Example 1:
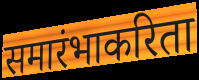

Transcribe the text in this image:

समारंभाकरिता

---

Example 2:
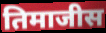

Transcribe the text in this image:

तिमाजीस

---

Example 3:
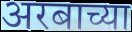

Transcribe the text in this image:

अरबाच्या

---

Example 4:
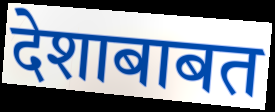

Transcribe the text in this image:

देशाबाबत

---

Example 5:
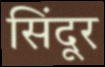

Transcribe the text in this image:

सिंदूर